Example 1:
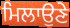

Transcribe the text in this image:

ਮਿਲਾਉਣੇ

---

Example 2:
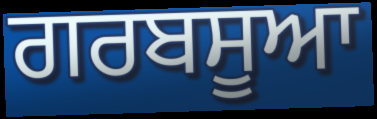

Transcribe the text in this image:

ਗਰਬਸੂਆ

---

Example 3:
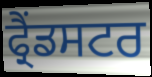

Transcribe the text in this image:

ਫ੍ਰੈਂਡਸਟਰ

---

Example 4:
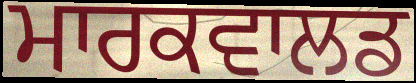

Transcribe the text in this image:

ਮਾਰਕਵਾਲਡ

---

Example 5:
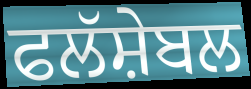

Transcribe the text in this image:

ਫਲੱਸ਼ੇਬਲ